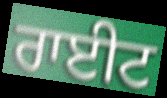
ਰਾਈਟ